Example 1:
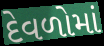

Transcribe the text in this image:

દેવળોમાં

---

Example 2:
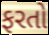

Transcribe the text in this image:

ફરતો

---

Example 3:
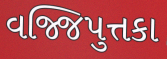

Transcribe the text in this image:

વજ્જિપુત્તકા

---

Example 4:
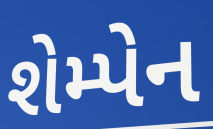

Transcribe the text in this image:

શેમ્પેન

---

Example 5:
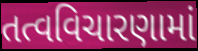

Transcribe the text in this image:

તત્વવિચારણામાં